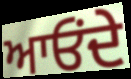
ਆਓਂਦੇ